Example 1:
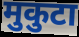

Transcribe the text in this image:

मुकुटा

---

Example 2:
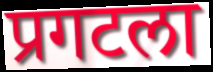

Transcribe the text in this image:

प्रगटला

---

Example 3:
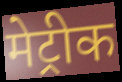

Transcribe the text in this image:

मेट्रीक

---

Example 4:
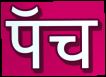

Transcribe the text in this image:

पॅच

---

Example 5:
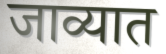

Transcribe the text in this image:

जाव्यात